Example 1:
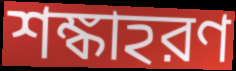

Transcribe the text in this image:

শঙ্কাহরণ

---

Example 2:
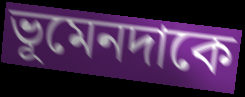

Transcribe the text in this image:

ভূমেনদাকে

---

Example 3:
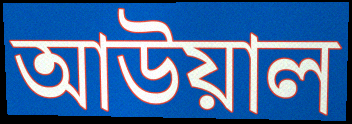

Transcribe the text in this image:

আউয়াল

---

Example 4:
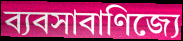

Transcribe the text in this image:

ব্যবসাবাণিজ্যে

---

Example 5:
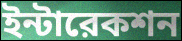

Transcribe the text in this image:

ইন্টারেকশন